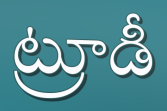
ట్రూడీ